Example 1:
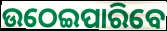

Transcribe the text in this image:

ଉଠେଇପାରିବେ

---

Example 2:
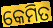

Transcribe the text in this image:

କେମିତ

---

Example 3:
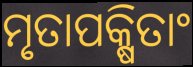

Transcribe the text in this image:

ମୃତାପକ୍ଷିତାଂ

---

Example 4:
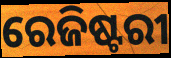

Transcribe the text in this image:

ରେଜିଷ୍ଟରୀ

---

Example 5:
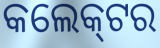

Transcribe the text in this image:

କଲେକ୍‌ଟର